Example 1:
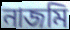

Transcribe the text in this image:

নাজমি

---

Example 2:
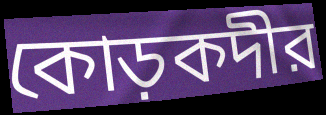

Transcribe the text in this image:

কোড়কদীর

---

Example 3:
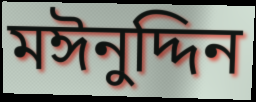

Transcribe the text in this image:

মঈনুদ্দিন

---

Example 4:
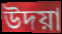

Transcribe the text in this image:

উদয়া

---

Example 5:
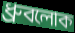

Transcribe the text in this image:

ধ্রুবলোক